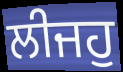
ਲੀਜਹੁ